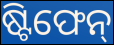
ଷ୍ଟିଫେନ୍